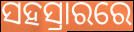
ସହସ୍ରାରରେ